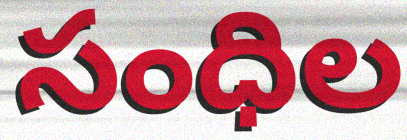
సంధిల